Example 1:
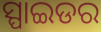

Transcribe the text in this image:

ସ୍ପାଇଡର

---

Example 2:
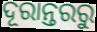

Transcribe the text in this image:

ଦୂରାନ୍ତରରୁ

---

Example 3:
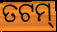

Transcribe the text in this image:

ତଟମ୍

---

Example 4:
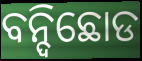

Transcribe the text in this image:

ବନ୍ଦିଛୋଡ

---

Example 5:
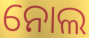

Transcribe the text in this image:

ନୋଲ